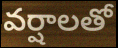
వర్షాలతో